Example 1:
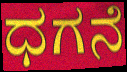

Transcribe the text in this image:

ಧಗನೆ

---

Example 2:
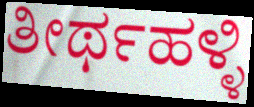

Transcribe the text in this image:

ತೀರ್ಥಹಳ್ಳಿ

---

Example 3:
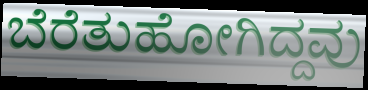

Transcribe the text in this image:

ಬೆರೆತುಹೋಗಿದ್ದವು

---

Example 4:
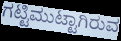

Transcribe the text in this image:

ಗಟ್ಟಿಮುಟ್ಟಾಗಿರುವ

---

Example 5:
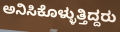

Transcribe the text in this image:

ಅನಿಸಿಕೊಳ್ಳುತ್ತಿದ್ದರು